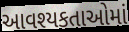
આવશ્યકતાઓમાં